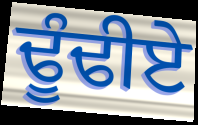
ਢੂੰਢੀਏ